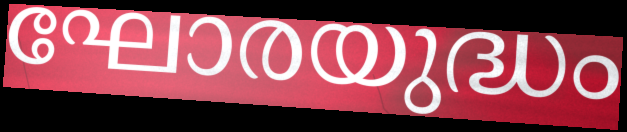
ഘോരയുദ്ധം